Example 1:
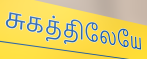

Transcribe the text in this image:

சுகத்திலேயே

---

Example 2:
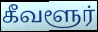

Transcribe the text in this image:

கீவளூர்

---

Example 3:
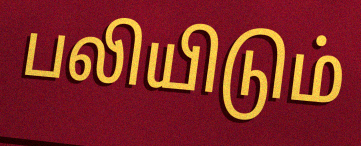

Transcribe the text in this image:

பலியிடும்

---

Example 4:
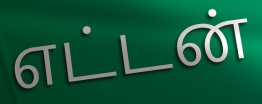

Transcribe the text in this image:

எட்டன்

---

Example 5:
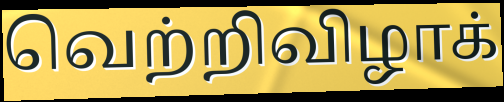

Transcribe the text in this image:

வெற்றிவிழாக்